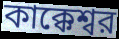
কাক্কেশ্বর